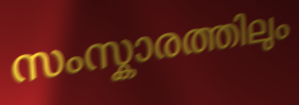
സംസ്കാരത്തിലും